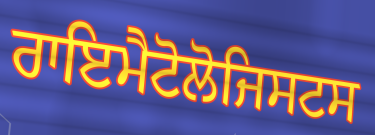
ਰਾਇਮੈਟੋਲੋਜਿਸਟਸ